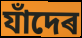
যাঁদেৰ